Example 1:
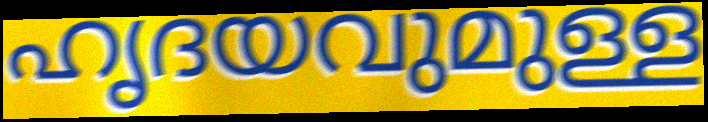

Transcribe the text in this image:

ഹൃദയവുമുള്ള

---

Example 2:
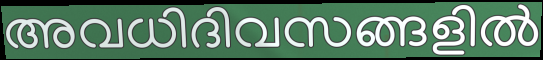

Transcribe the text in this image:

അവധിദിവസങ്ങളിൽ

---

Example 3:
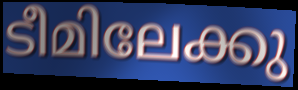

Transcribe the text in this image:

ടീമിലേക്കു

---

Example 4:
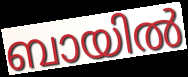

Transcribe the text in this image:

ബായിൽ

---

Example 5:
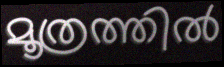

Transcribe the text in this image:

മൂത്രത്തിൽ